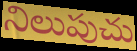
నిలుపుచు